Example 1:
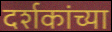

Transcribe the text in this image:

दर्शकांच्या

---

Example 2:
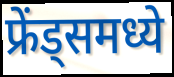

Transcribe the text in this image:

फ्रेंड्समध्ये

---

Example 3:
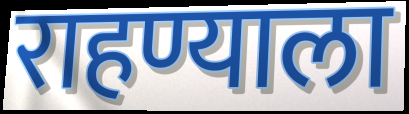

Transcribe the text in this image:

राहण्याला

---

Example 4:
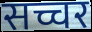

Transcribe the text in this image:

सच्चर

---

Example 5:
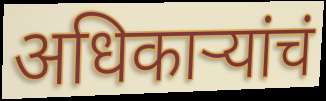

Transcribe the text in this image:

अधिकाऱ्यांचं